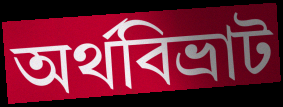
অর্থবিভ্রাট